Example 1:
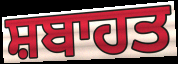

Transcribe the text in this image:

ਸ਼ਬਾਹਤ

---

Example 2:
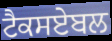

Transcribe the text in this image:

ਟੈਕਸਏਬਲ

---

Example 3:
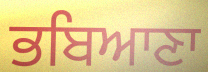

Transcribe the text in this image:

ਭਬਿਆਣਾ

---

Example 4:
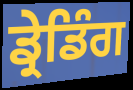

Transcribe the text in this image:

ਡ੍ਰੇਡਿੰਗ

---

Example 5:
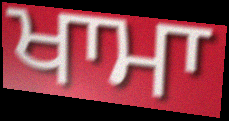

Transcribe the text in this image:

ਖਾਮਾ